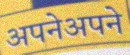
अपनेअपने